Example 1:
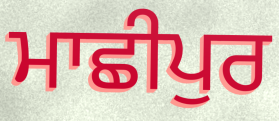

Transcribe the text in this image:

ਮਾਛੀਪੁਰ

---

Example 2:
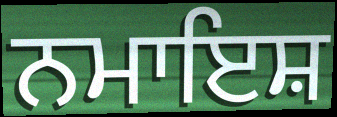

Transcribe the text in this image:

ਨਮਾਇਸ਼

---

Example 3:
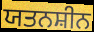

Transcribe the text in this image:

ਯਤਨਸ਼ੀਨ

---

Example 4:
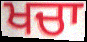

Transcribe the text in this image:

ਖਚਾ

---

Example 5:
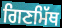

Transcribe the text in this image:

ਗਿਣਮਿੱਥ